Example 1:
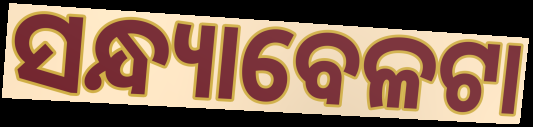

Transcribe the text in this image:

ସନ୍ଧ୍ୟାବେଳଟା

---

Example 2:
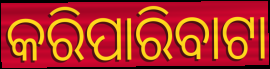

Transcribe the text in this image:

କରିପାରିବାଟା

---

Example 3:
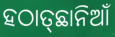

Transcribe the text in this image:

ହଠାତ୍‌ଛାନିଆଁ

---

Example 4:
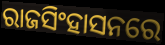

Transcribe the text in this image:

ରାଜସିଂହାସନରେ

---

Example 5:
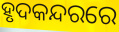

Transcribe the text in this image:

ହୃଦକନ୍ଦରରେ